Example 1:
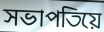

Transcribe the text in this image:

সভাপতিয়ে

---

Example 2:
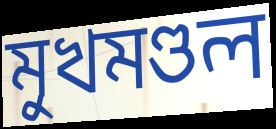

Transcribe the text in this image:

মুখমণ্ডল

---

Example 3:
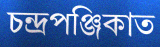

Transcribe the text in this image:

চন্দ্ৰপঞ্জিকাত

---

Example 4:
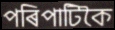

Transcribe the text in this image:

পৰিপাটিকৈ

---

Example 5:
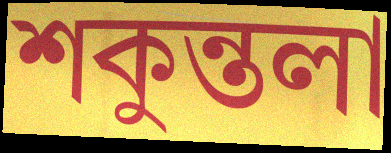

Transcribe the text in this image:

শকুন্তলা